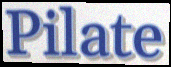
Pilate